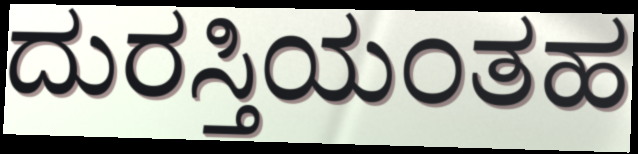
ದುರಸ್ತಿಯಂತಹ